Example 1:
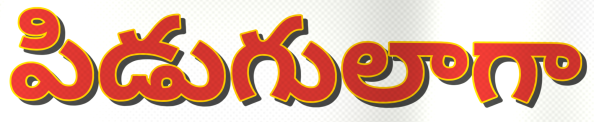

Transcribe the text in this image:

పిడుగులాగా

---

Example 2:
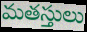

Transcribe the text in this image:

మతస్తులు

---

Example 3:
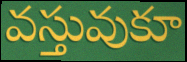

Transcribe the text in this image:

వస్తువుకూ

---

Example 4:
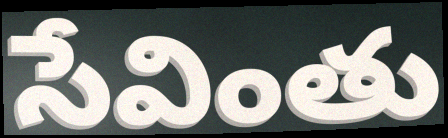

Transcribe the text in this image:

సేవింతు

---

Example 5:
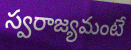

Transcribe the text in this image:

స్వరాజ్యమంటే